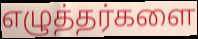
எழுத்தர்களை